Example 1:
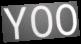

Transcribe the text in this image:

YOO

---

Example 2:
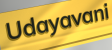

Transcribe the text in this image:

Udayavani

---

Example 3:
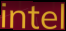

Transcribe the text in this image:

intel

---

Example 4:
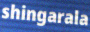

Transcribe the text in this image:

shingarala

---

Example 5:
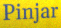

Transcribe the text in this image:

Pinjar